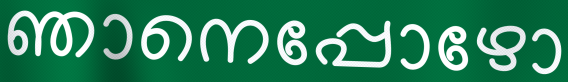
ഞാനെപ്പോഴോ